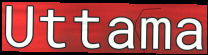
Uttama